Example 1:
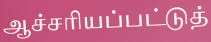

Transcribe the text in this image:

ஆச்சரியப்பட்டுத்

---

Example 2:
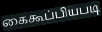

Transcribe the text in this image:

கைகூப்பியபடி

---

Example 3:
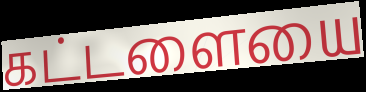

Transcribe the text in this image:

கட்டளையை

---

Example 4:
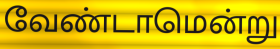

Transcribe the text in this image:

வேண்டாமென்று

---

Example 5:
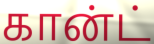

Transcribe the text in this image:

கான்ட்